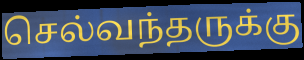
செல்வந்தருக்கு